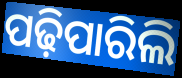
ପଢ଼ିପାରିଲି